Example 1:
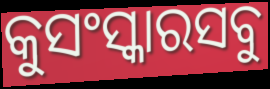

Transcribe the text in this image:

କୁସଂସ୍କାରସବୁ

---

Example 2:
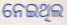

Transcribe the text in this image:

ନେଇଥିଲ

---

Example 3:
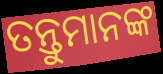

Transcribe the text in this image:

ତନ୍ତୁମାନଙ୍କ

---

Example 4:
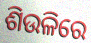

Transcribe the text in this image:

ଶିଉଳିରେ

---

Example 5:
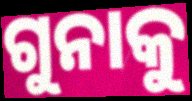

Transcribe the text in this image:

ଗୁନାକୁ